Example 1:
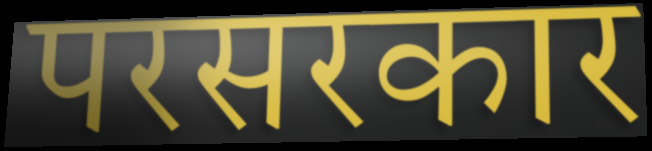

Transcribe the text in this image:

परसरकार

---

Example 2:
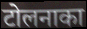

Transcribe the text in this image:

टोलनाका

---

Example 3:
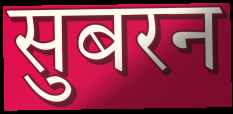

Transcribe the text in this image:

सुबरन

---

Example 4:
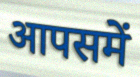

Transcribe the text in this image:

आपसमें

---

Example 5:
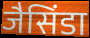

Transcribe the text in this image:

जैसिंडा